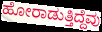
ಹೋರಾಡುತ್ತಿದ್ದೆವು